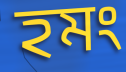
হমং